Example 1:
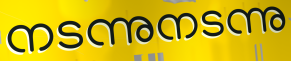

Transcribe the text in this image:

നടന്നുനടന്നു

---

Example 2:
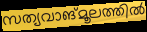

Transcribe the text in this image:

സത്യവാങ്മൂലത്തിൽ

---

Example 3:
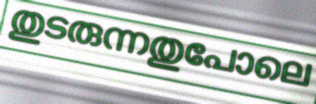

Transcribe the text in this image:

തുടരുന്നതുപോലെ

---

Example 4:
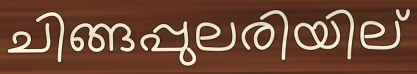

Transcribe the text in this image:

ചിങ്ങപ്പുലരിയില്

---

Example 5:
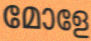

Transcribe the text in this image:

മോളേ